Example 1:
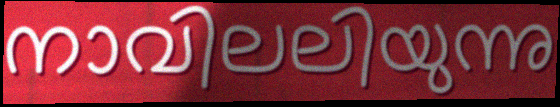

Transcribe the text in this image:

നാവിലലിയുന്നു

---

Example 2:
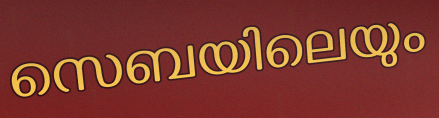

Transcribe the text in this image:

സെബയിലെയും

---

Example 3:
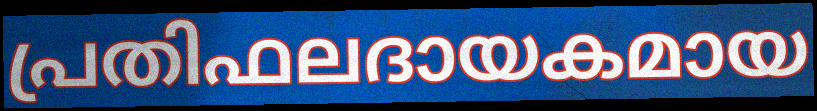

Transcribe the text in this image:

പ്രതിഫലദായകമായ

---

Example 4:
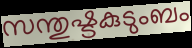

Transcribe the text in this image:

സന്തുഷ്ടകുടുംബം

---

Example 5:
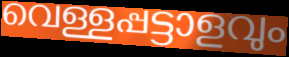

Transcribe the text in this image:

വെള്ളപ്പട്ടാളവും